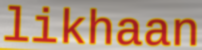
likhaan